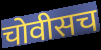
चोवीसच